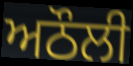
ਅਠੌਲੀ